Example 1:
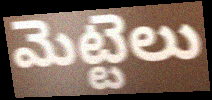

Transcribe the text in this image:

మెట్టెలు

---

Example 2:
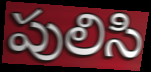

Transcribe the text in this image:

పులిసి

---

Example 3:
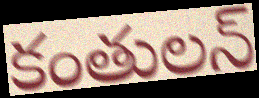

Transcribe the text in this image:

కంతులన్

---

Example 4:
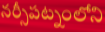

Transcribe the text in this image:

నర్సీపట్నంలోని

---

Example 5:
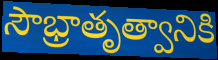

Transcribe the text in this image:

సౌభ్రాతృత్వానికి